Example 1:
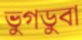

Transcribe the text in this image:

ভুগডুবা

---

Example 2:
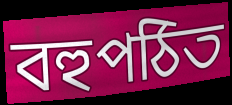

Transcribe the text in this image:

বহুপঠিত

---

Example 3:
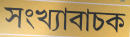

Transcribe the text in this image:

সংখ্যাবাচক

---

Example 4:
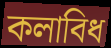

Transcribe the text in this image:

কলাবিধ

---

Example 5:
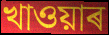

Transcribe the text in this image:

খাওয়াৰ